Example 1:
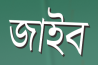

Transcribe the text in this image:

জাইব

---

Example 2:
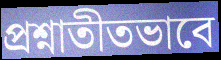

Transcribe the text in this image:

প্রশ্নাতীতভাবে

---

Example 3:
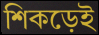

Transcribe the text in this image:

শিকড়েই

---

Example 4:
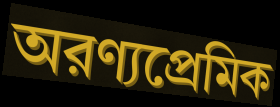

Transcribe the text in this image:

অরণ্যপ্রেমিক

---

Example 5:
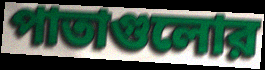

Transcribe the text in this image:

পাতাগুলোর